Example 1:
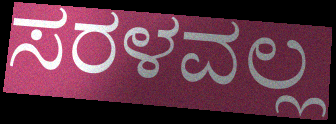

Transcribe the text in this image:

ಸರಳವಲ್ಲ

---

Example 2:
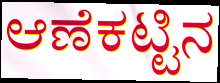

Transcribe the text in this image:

ಆಣೆಕಟ್ಟಿನ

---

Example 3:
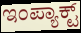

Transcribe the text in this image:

ಇಂಪ್ಯಾಕ್ಟ್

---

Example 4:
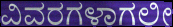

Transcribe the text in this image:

ವಿವರಗಳಾಗಲೀ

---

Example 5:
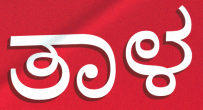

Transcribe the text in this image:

ತಾಳ